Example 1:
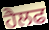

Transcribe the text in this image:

ਹੈਲਫ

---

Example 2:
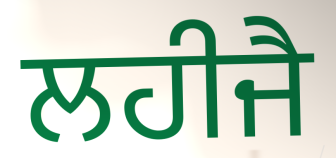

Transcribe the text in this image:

ਲਹੀਜੈ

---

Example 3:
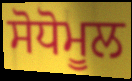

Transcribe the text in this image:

ਸੋਧੋਮੂਲ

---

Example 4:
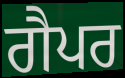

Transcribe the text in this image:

ਗੈਪਰ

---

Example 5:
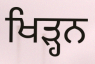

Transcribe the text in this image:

ਖਿੜ੍ਹਨ